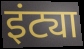
इंट्या